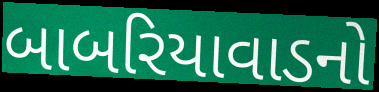
બાબરિયાવાડનો